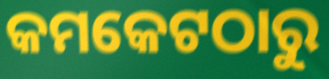
କମକେଟଠାରୁ